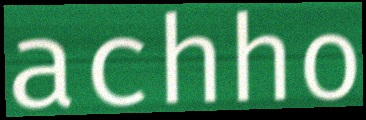
achho